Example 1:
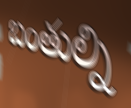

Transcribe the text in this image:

బంతుల్ని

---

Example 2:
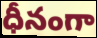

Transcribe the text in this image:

ధీనంగా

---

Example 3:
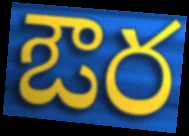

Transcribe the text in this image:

ఔర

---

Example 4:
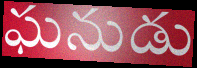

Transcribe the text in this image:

ఘనుడు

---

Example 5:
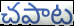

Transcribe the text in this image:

చపాట